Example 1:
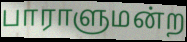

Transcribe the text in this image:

பாராளுமன்ற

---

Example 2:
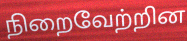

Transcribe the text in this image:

நிறைவேற்றின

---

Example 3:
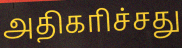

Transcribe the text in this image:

அதிகரிச்சது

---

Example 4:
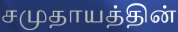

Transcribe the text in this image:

சமுதாயத்தின்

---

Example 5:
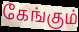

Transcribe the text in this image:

கேங்கும்